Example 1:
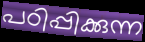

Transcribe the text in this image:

പഠിപ്പിക്കുന്ന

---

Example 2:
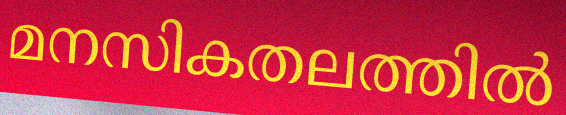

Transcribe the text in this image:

മനസികതലത്തിൽ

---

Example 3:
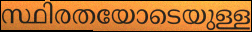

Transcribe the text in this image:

സ്ഥിരതയോടെയുള്ള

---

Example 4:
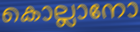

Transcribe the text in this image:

കൊല്ലാനോ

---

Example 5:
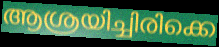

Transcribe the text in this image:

ആശ്രയിച്ചിരിക്കെ